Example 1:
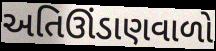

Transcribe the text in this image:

અતિઊંડાણવાળો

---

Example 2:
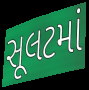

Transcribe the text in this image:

સૂલટમાં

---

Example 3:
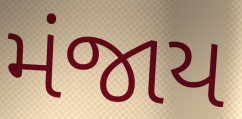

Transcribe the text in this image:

મંજાય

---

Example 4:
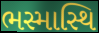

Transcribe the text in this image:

ભસ્માસ્થિ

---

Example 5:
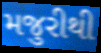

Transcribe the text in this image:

મજુરીથી